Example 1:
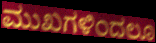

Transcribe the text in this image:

ಮುಖಗಳಿಂದಲೂ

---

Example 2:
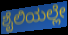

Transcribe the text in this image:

ಶೈಲಿಯಲ್ಲೇ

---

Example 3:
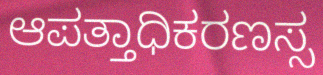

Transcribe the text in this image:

ಆಪತ್ತಾಧಿಕರಣಸ್ಸ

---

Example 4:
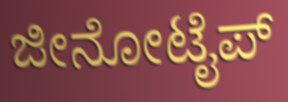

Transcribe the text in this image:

ಜೀನೋಟೈಪ್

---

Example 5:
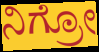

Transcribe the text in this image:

ನಿಗ್ರೋ